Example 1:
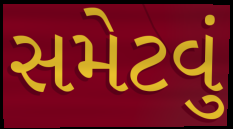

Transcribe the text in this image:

સમેટવું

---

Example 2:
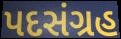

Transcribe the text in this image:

પદસંગ્રહ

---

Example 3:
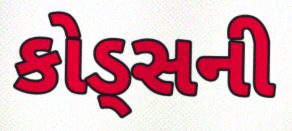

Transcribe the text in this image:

કોડ્સની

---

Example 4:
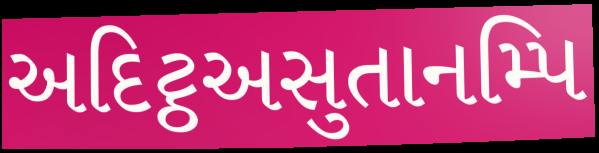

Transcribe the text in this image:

અદિટ્ઠઅસુતાનમ્પિ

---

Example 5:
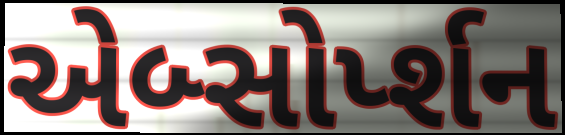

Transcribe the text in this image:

એબ્સોર્પ્શન